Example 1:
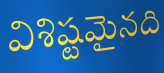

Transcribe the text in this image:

విశిష్టమైనది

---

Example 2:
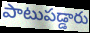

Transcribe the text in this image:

పాటుపడ్డారు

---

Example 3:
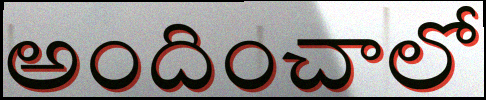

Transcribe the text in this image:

అందించాలో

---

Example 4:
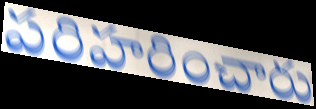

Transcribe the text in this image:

పరిహరించారు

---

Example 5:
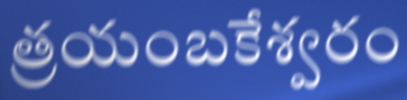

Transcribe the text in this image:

త్రయంబకేశ్వరం